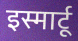
इस्मार्टू